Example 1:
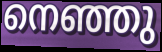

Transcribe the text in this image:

നെഞ്ഞു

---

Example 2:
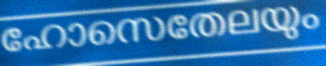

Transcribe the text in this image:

ഹോസെതേലയും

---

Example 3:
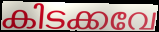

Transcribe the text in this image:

കിടക്കവേ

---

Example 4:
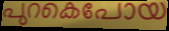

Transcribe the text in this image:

പുറകെപോയ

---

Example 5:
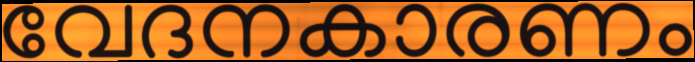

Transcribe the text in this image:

വേദനകാരണം